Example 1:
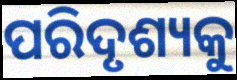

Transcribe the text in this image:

ପରିଦୃଶ୍ୟକୁ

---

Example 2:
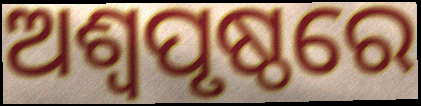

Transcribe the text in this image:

ଅଶ୍ଵପୃଷ୍ଠରେ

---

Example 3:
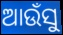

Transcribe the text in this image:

ଆଉଁସୁ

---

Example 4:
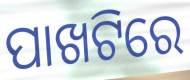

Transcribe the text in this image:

ପାଖଟିରେ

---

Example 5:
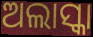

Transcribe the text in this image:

ଅଲାସ୍କା